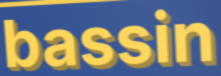
bassin